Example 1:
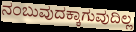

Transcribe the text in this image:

ನಂಬುವುದಕ್ಕಾಗುವುದಿಲ್ಲ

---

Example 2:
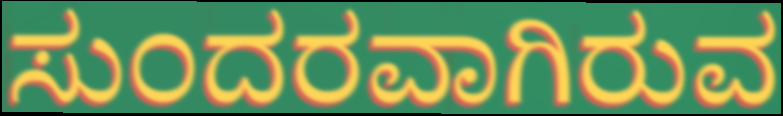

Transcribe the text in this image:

ಸುಂದರವಾಗಿರುವ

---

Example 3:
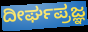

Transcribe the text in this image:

ದೀರ್ಘಪ್ರಜ್ಞ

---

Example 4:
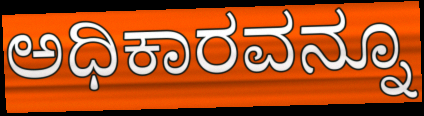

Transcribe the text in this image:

ಅಧಿಕಾರವನ್ನೂ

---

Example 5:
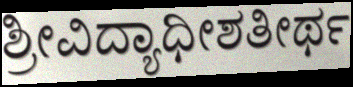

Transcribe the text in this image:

ಶ್ರೀವಿದ್ಯಾಧೀಶತೀರ್ಥ